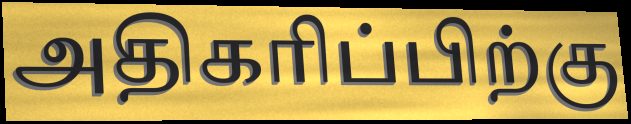
அதிகரிப்பிற்கு